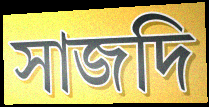
সাজদি